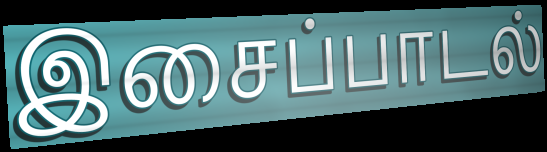
இசைப்பாடல்